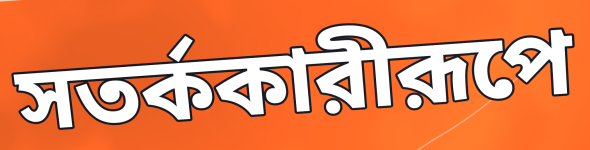
সতর্ককারীরূপে